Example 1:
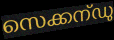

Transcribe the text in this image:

സെക്കന്ഡു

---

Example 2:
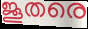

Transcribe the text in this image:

ജൂതരെ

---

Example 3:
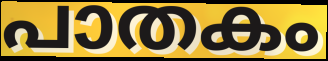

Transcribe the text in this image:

പാതകം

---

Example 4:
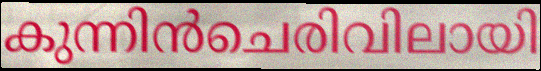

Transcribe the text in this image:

കുന്നിൻചെരിവിലായി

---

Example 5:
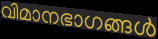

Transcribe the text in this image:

വിമാനഭാഗങ്ങൾ